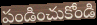
పండించుకోండి